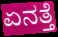
ಏನತ್ತೆ